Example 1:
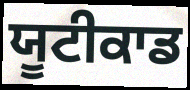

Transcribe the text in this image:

ਯੂਟੀਕਾਡ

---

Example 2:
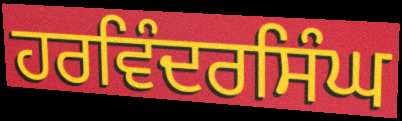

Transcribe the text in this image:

ਹਰਵਿੰਦਰਸਿੰਘ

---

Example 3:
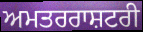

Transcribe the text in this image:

ਅਮਤਰਰਾਸ਼ਟਰੀ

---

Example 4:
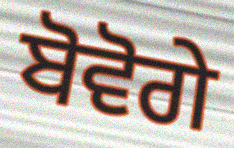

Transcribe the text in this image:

ਬੋਵੋਗੇ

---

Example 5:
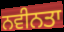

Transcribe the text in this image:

ਨਵੀਨਤਾ